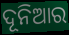
ଦୂନିଆର